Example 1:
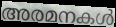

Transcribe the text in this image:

അരമനകൾ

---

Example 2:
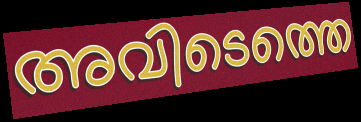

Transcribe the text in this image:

അവിടെത്തെ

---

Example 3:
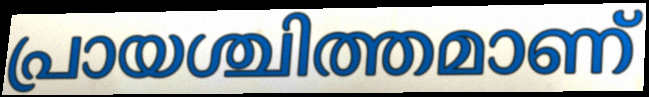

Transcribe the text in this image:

പ്രായശ്ചിത്തമാണ്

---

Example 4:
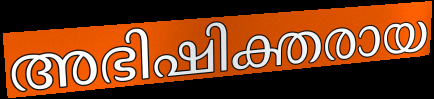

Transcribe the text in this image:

അഭിഷിക്തരായ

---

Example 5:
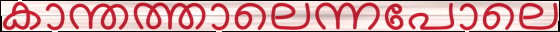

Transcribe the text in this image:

കാന്തത്താലെന്നപോലെ